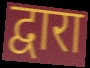
द्वारा